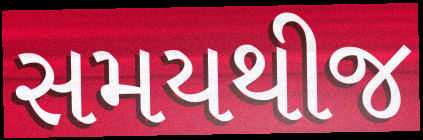
સમયથીજ